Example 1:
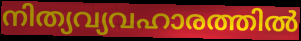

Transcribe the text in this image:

നിത്യവ്യവഹാരത്തിൽ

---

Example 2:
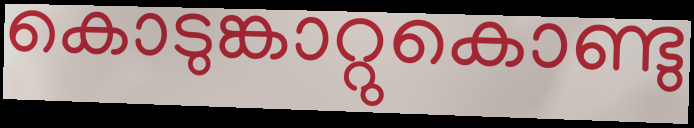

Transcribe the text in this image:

കൊടുങ്കാറ്റുകൊണ്ടു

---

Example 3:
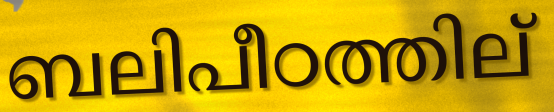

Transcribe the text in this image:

ബലിപീഠത്തില്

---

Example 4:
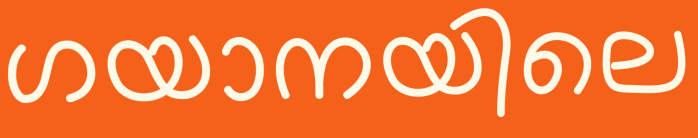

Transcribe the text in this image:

ഗയാനയിലെ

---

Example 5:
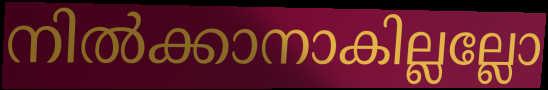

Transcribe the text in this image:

നിൽക്കാനാകില്ലല്ലോ